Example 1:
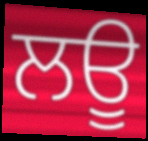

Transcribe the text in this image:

ਲਊ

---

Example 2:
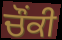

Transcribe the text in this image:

ਚੌਂਕੀ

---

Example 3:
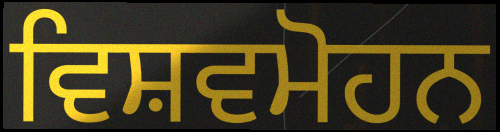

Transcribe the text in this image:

ਵਿਸ਼ਵਮੋਹਨ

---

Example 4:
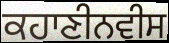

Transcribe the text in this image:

ਕਹਾਣੀਨਵੀਸ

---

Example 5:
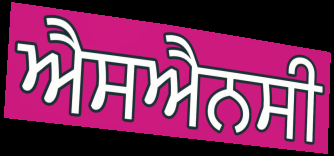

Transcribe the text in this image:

ਐਸਐਨਸੀ